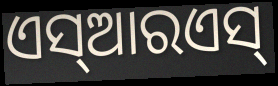
ଏସ୍ଆରଏସ୍